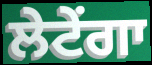
ਲੇਟੇਂਗਾ